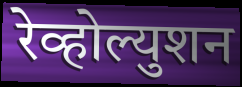
रेव्होल्युशन